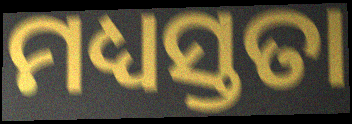
ମଧ୍ୟସ୍ତତା